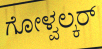
ಗೋಳ್ವಲ್ಕರ್